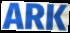
ARK